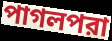
পাগলপরা